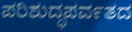
ಪರಿಶುದ್ಧಪರ್ವತದ